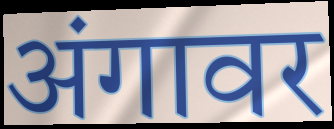
अंगावर